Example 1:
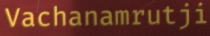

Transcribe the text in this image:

Vachanamrutji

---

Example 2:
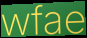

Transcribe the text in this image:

wfae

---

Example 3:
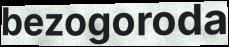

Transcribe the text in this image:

bezogoroda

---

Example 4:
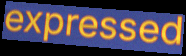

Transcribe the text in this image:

expressed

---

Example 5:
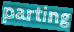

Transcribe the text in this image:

parting